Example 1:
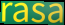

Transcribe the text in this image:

rasa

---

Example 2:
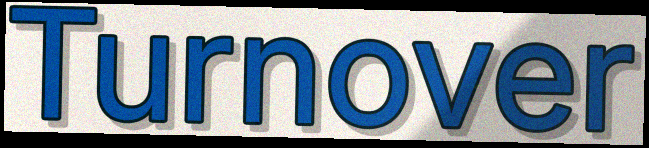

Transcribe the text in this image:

Turnover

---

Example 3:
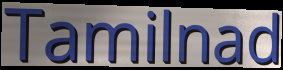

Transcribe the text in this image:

Tamilnad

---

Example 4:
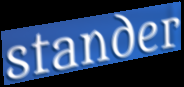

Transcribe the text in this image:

stander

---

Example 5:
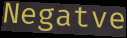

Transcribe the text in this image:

Negatve